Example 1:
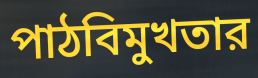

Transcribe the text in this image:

পাঠবিমুখতার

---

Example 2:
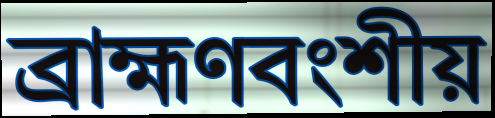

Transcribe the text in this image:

ব্রাহ্মণবংশীয়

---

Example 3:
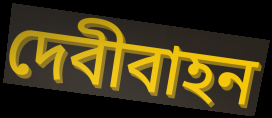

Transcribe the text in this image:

দেবীবাহন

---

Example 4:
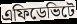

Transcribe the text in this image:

এফিডেভিটে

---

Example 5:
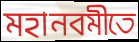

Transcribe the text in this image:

মহানবমীতে